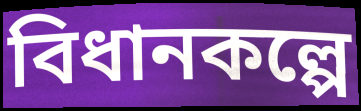
বিধানকল্পে